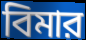
বিমার